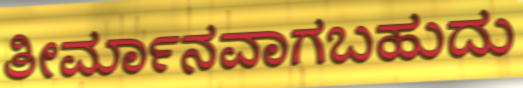
ತೀರ್ಮಾನವಾಗಬಹುದು